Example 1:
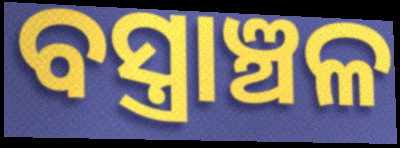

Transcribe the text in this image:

ବସ୍ତ୍ରାଞ୍ଚଳ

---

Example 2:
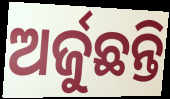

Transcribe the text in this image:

ଅର୍ଜୁଛନ୍ତି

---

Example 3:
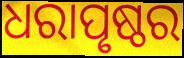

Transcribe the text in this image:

ଧରାପୃଷ୍ଠର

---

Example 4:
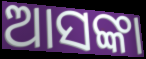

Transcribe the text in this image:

ଆସଙ୍କା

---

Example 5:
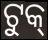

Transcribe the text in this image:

ଟୁକ୍